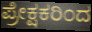
ಪ್ರೇಕ್ಷಕರಿಂದ